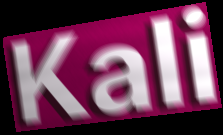
Kali